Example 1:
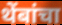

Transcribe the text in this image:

थेंबांचा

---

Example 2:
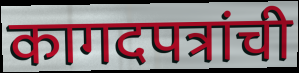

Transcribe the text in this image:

कागदपत्रांची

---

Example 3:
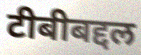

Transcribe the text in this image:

टीबीबद्दल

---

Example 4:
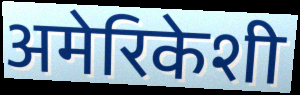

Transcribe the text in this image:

अमेरिकेशी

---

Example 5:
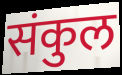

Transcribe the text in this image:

संकुल